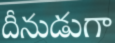
దీనుడుగా